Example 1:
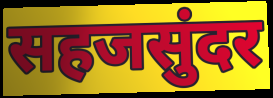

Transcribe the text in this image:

सहजसुंदर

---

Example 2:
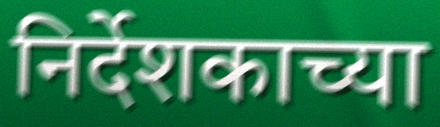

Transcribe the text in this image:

निर्देशकाच्या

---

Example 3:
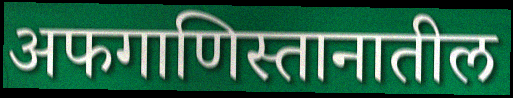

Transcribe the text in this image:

अफगाणिस्तानातील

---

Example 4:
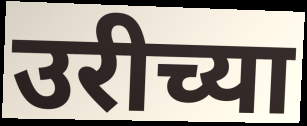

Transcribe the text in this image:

उरीच्या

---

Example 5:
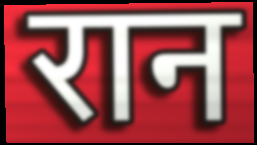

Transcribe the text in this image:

रान